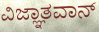
ವಿಜ್ಞಾತವಾನ್